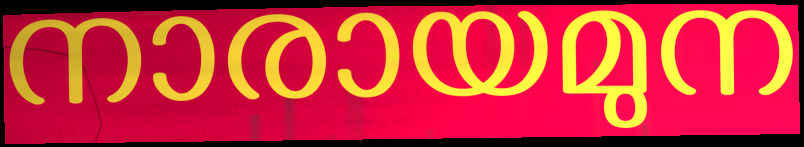
നാരായമുന